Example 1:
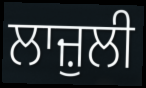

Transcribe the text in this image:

ਲਾਜ਼ੁਲੀ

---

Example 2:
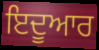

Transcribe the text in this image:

ਇਦੂਆਰ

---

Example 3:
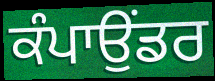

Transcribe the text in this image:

ਕੰਪਾਉਂਡਰ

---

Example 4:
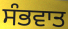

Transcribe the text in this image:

ਸੰਭਵਾਤ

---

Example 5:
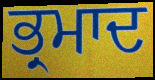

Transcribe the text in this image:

ਭ੍ਰਮਾਦ